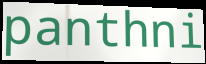
panthni